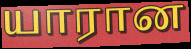
யாரான